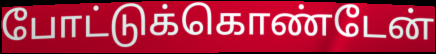
போட்டுக்கொண்டேன்